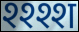
श्श्श्श